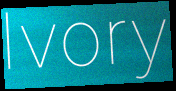
Ivory